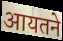
आयतने